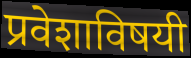
प्रवेशाविषयी